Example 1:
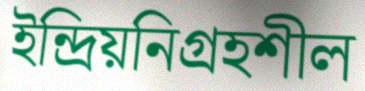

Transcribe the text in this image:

ইন্দ্রিয়নিগ্রহশীল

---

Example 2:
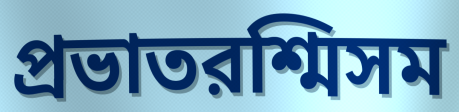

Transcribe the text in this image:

প্রভাতরশ্মিসম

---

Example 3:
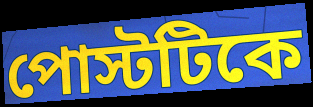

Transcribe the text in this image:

পোস্টটিকে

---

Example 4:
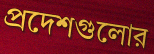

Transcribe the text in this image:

প্রদেশগুলোর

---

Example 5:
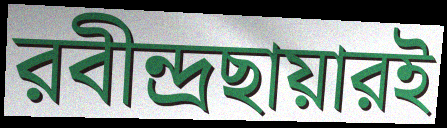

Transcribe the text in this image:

রবীন্দ্রছায়ারই